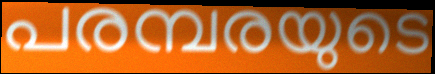
പരമ്പരയുടെ